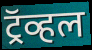
ट्रॅव्हल